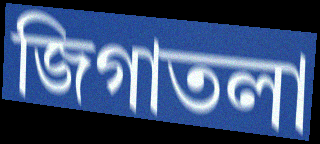
জিগাতলা